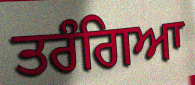
ਤਰੰਗਿਆ